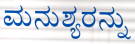
ಮನುಶ್ಯರನ್ನು